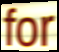
for